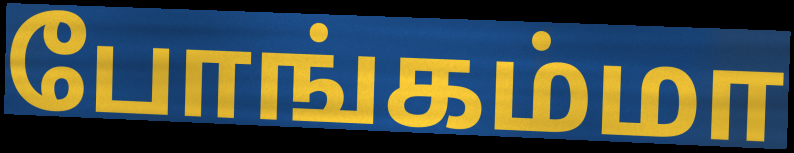
போங்கம்மா